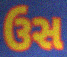
ઉસ